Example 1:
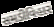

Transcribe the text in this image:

સમડીવિહાર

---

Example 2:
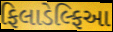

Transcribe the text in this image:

ફિલાડેલ્ફિઆ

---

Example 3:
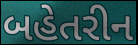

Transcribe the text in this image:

બહેતરીન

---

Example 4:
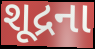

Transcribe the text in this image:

શૂદ્રના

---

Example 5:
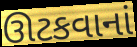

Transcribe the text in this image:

ઊટકવાનાં